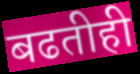
बढतीही